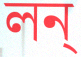
লন্